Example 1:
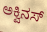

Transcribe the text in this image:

ಅಕ್ವಿನಸ್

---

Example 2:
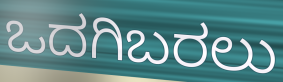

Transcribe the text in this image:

ಒದಗಿಬರಲು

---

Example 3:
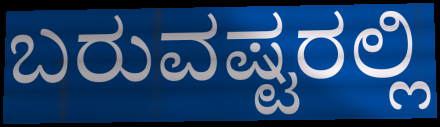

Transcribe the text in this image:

ಬರುವಷ್ಟರಲ್ಲಿ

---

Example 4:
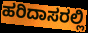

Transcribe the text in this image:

ಹರಿದಾಸರಲ್ಲಿ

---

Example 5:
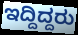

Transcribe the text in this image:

ಇದ್ದಿದ್ದರು